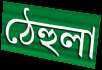
ঠেহুলা